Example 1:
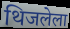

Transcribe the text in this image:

थिजलेला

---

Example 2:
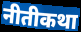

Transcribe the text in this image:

नीतीकथा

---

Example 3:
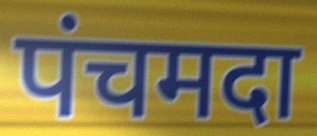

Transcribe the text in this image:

पंचमदा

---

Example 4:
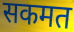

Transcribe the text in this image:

सकमत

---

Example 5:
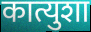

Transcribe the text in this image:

कात्युशा